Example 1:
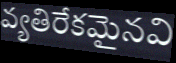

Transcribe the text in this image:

వ్యతిరేకమైనవి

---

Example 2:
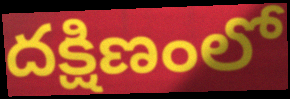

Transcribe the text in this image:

దక్షిణంలో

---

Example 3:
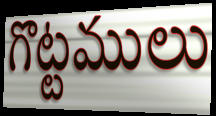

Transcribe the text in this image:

గొట్టములు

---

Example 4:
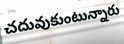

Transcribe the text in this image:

చదువుకుంటున్నారు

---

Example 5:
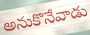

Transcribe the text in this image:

అనుకొనేవాడు